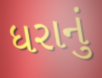
ધરાનું